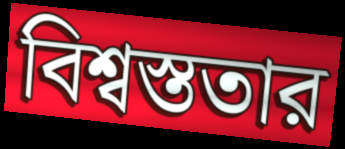
বিশ্বস্ততার